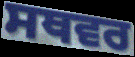
ਸਥਵਰ